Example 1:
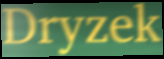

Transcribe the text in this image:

Dryzek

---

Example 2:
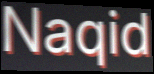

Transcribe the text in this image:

Naqid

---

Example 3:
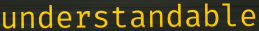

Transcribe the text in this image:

understandable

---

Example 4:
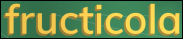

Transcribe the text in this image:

fructicola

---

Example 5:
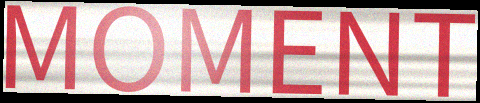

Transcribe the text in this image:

MOMENT